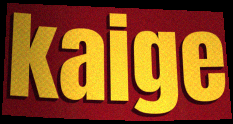
kaige